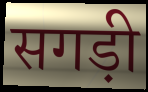
सगड़ी